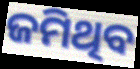
ଜମିଥିବ